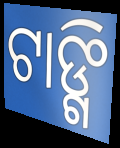
ଟାଙ୍ଗି